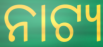
ନାଟ୍ୟ